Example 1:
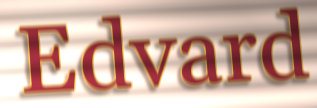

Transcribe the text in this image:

Edvard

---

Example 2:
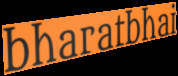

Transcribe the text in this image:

bharatbhai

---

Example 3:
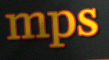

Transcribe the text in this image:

mps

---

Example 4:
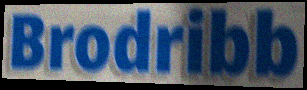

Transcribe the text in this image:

Brodribb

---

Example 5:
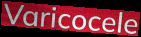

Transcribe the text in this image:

Varicocele